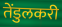
तेंडुलकरी